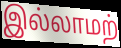
இல்லாமற்